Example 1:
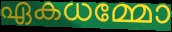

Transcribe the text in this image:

ഏകധമ്മോ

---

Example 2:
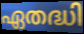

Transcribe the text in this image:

ഏതദ്ധി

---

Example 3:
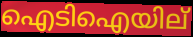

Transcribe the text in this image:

ഐടിഐയില്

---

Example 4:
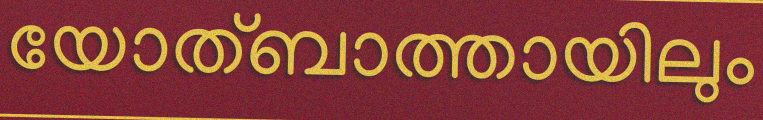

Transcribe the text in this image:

യോത്ബാത്തായിലും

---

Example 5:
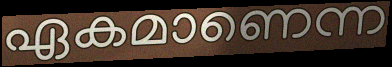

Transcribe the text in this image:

ഏകമാണെന്ന